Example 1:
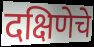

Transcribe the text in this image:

दक्षिणेचे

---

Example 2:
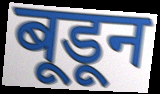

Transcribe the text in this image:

बूडून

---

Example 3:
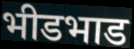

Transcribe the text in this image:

भीडभाड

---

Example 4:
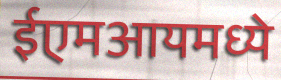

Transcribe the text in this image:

ईएमआयमध्ये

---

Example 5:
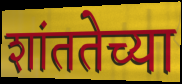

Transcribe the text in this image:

शांततेच्या